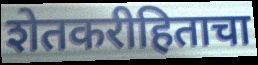
शेतकरीहिताचा